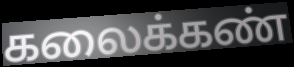
கலைக்கண்